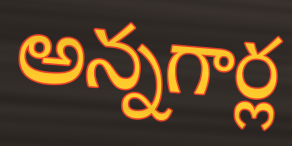
అన్నగార్ల